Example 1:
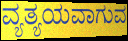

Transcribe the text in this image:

ವ್ಯತ್ಯಯವಾಗುವ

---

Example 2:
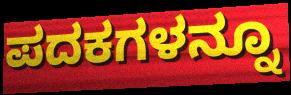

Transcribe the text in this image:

ಪದಕಗಳನ್ನೂ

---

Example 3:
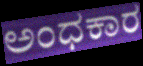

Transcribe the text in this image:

ಅಂಧಕಾರ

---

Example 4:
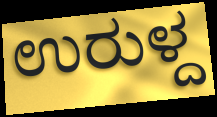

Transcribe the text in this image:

ಉರುಳ್ದ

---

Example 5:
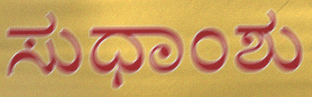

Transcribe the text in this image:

ಸುಧಾಂಶು